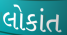
લોકાંત